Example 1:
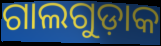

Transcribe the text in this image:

ଗାଲଗୁଡ଼ାକ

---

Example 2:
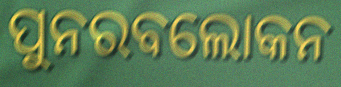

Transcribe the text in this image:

ପୁନରବଲୋକନ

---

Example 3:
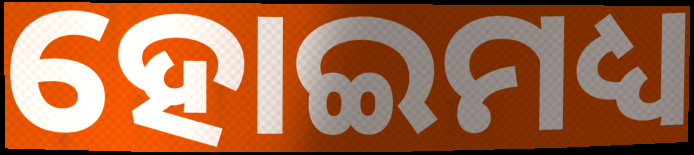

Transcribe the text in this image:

ହୋଇମଧ୍ୟ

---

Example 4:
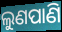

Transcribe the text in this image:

ଲୁଣପାଣି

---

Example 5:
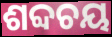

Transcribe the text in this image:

ଶବ୍ଦଚୟ